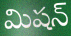
మిషన్